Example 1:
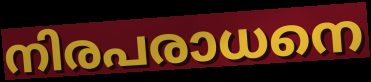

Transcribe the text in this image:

നിരപരാധനെ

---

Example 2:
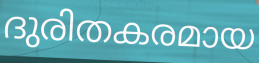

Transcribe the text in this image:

ദുരിതകരമായ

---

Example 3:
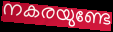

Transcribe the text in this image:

നകരയുണ്ടേ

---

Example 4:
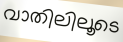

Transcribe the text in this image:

വാതിലിലൂടെ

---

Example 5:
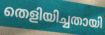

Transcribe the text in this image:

തെളിയിച്ചതായി